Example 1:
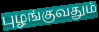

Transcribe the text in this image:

புழங்குவதும்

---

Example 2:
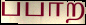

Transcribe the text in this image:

பபாற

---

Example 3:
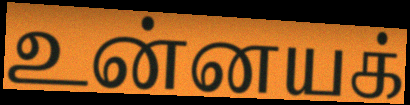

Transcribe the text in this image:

உன்னயக்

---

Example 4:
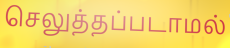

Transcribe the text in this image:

செலுத்தப்படாமல்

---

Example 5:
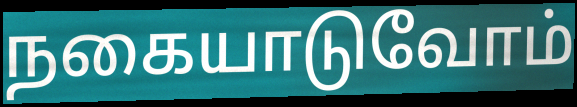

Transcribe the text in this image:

நகையாடுவோம்